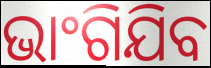
ଭାଂଗିଯିବ